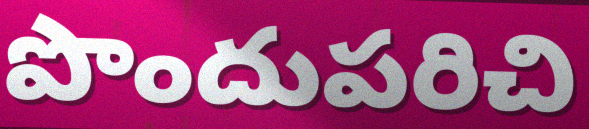
పొందుపరిచి